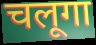
चलूगा